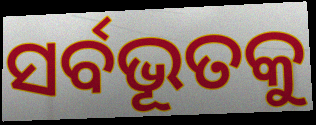
ସର୍ବଭୂତକୁ